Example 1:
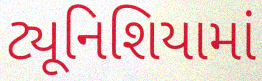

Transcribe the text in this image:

ટ્યૂનિશિયામાં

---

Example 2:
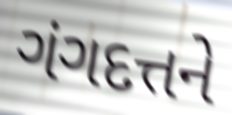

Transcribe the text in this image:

ગંગદત્તને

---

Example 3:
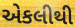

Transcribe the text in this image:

એકલીથી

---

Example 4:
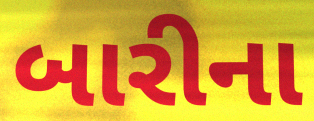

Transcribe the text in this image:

બારીના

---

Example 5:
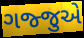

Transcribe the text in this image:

ગજ્જુએ